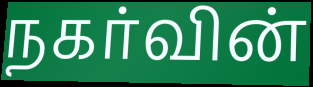
நகர்வின்